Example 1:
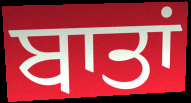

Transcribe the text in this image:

ਬਾਤਾਂ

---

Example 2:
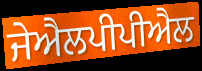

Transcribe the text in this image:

ਜੇਐਲਪੀਪੀਐਲ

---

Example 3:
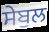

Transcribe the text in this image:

ਸੇਬੁਲ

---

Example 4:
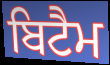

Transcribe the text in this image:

ਬਿਟੈਮ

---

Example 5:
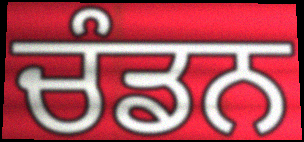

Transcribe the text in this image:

ਚੰਡਨ